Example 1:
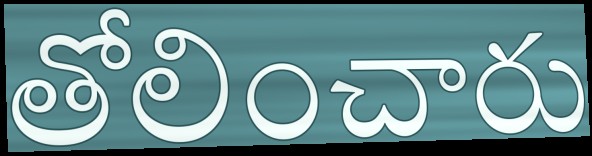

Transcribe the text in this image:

తోలించారు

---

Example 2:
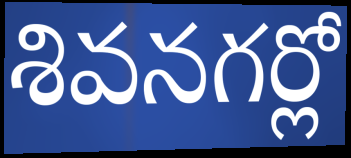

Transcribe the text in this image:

శివనగర్లో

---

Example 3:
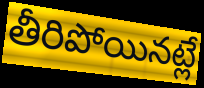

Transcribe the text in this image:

తీరిపోయినట్లే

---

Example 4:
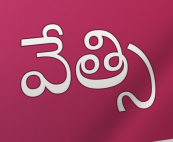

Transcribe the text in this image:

వేత్సి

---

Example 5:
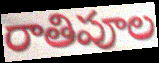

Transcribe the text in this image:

రాతిపూల